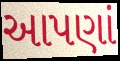
આપણાં